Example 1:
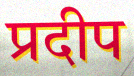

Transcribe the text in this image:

प्रदीप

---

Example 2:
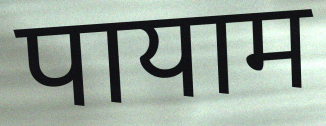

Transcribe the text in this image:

पायाम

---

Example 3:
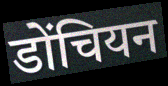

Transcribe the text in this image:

डोंचियन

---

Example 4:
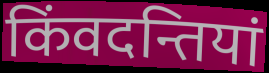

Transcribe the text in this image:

किंवदन्तियां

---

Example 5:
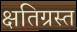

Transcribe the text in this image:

क्षतिग्रस्त